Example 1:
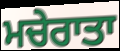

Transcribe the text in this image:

ਮਚੇਰਾਤਾ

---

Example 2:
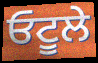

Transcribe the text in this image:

ਓਟੂਲੇ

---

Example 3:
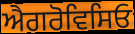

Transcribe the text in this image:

ਐਗਰੋਵਿਸਿਓ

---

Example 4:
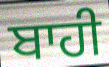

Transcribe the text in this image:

ਬਾਹੀ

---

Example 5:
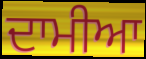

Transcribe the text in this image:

ਦਾਮੀਆ